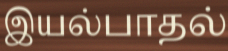
இயல்பாதல்